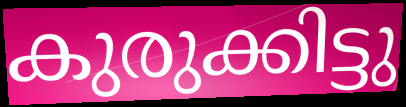
കുരുക്കിട്ടു